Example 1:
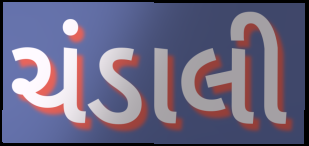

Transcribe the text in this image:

ચંડાલી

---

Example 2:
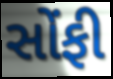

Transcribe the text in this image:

સોંફી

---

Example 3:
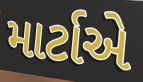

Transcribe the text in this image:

માર્ટાએ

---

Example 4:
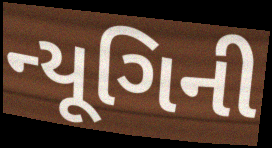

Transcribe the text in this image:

ન્યૂગિની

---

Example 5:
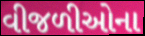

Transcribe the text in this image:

વીજળીઓના